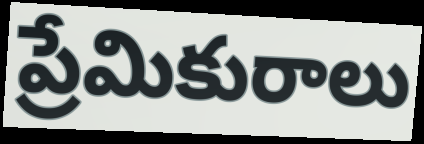
ప్రేమికురాలు